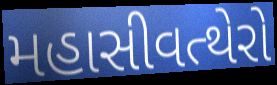
મહાસીવત્થેરો